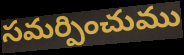
సమర్పించుము